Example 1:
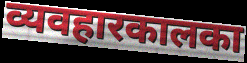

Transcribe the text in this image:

व्यवहारकालका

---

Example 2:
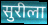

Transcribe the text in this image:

सुरीला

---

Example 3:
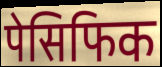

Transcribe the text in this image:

पेसिफिक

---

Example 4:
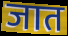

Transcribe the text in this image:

जात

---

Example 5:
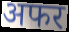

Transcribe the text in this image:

अफर